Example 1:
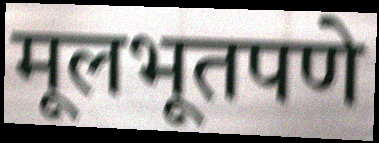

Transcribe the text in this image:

मूलभूतपणे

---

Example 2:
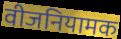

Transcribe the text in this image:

वीजनियामक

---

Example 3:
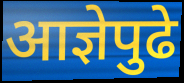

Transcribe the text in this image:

आज्ञेपुढे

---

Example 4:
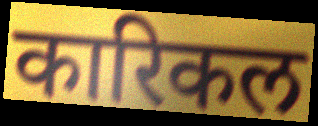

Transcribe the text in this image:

कारिकल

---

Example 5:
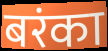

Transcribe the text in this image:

बरंका